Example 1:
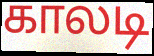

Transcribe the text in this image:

காலடி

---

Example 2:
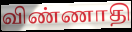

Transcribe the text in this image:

விண்ணாதி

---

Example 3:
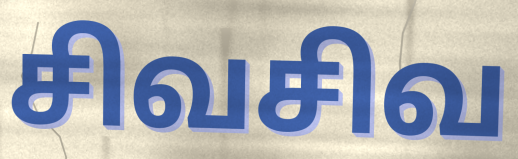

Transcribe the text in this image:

சிவசிவ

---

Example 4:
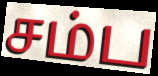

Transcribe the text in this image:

சம்ப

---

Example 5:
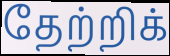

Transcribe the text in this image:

தேற்றிக்